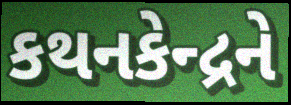
કથનકેન્દ્રને